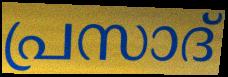
പ്രസാദ്